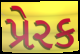
પ્રેરક